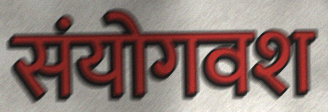
संयोगवश